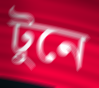
টুনে